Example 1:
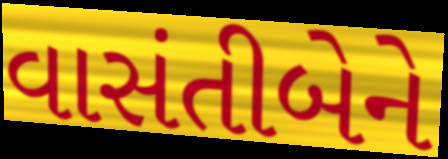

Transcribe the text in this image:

વાસંતીબેને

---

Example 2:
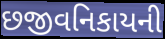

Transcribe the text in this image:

છજીવનિકાયની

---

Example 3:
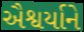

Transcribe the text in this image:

ઐશ્વર્યાને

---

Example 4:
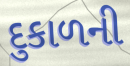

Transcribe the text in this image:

દુકાળની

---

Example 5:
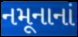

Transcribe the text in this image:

નમૂનાનાં